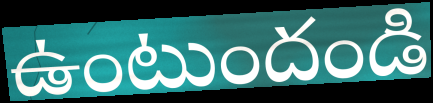
ఉంటుందండి